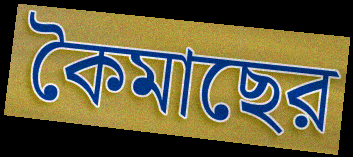
কৈমাছের